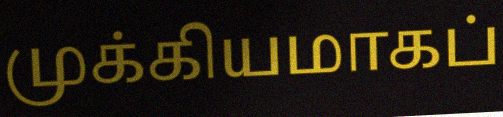
முக்கியமாகப்